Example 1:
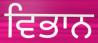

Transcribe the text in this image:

ਵਿਭਾਨ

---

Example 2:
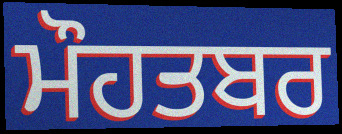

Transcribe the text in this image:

ਮੌਹਤਬਰ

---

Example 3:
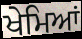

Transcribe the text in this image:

ਖੇਮਿਆਂ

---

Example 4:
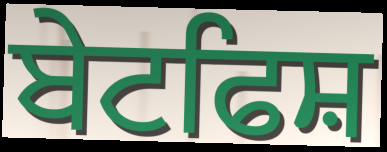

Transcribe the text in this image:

ਬੇਟਫਿਸ਼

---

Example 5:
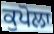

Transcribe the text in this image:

ਕੁਪੋਲਾ